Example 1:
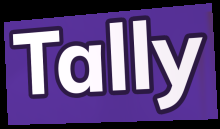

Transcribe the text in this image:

Tally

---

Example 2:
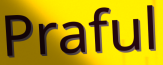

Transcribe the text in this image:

Praful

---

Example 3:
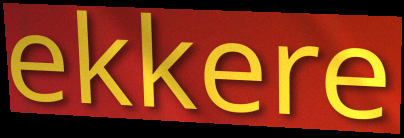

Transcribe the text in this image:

ekkere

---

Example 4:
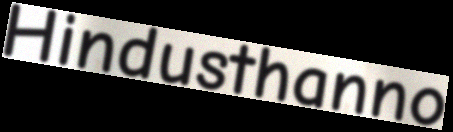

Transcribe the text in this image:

Hindusthanno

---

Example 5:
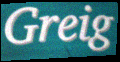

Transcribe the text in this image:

Greig